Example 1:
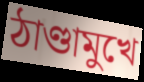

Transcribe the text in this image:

ঠাণ্ডামুখে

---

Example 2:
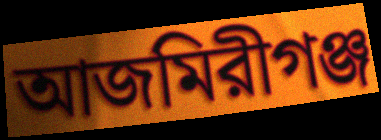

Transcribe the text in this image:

আজমিরীগঞ্জ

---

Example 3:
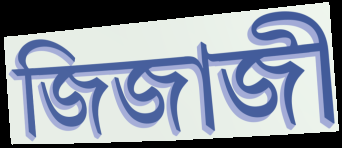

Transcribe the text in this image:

জিজাজী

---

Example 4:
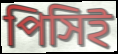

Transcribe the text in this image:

পিসিই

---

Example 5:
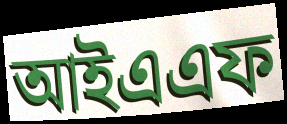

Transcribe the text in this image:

আইএএফ